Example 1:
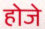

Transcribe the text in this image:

होजे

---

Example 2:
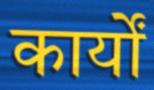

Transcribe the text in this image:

कार्यों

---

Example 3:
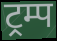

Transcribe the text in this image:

ट्रम्प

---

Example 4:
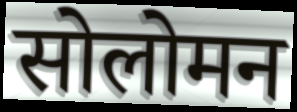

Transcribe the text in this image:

सोलोमन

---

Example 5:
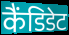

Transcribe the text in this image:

कैंडिडेट